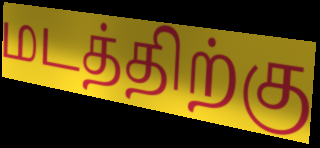
மடத்திற்கு